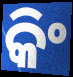
କିଂ